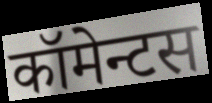
कॉमेन्टस